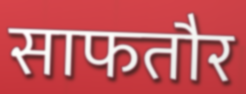
साफतौर